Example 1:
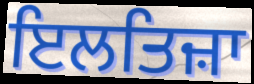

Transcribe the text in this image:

ਇਲਤਿਜ਼ਾ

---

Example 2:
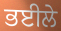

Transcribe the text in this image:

ਭਈਲੇ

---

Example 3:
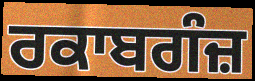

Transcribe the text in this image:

ਰਕਾਬਗੰਜ਼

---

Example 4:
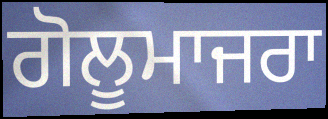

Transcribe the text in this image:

ਗੋਲੂਮਾਜਰਾ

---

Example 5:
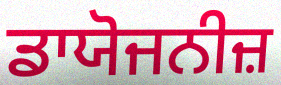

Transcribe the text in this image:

ਡਾਯੋਜਨੀਜ਼